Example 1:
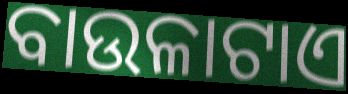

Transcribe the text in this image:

ବାଉଳାଟାଏ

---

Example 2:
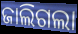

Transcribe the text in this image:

ଜାଲିଗଲା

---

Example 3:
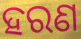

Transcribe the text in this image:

ହରଣ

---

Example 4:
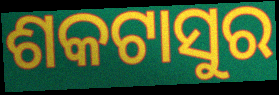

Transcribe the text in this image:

ଶକଟାସୁର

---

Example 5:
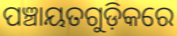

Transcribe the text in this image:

ପଞ୍ଚାୟତଗୁଡ଼ିକରେ